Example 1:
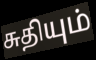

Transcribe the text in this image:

சுதியும்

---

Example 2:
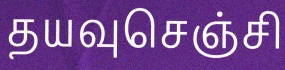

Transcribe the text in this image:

தயவுசெஞ்சி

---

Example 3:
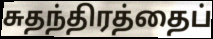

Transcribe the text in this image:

சுதந்திரத்தைப்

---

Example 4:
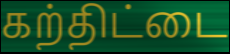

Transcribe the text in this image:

கற்திட்டை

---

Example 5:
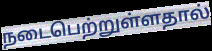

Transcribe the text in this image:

நடைபெற்றுள்ளதால்